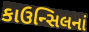
કાઉન્સિલનાં